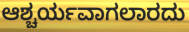
ಆಶ್ಚರ್ಯವಾಗಲಾರದು